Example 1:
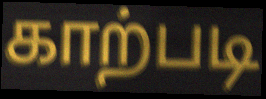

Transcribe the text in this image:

காற்படி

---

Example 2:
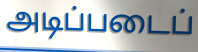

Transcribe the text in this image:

அடிப்படைப்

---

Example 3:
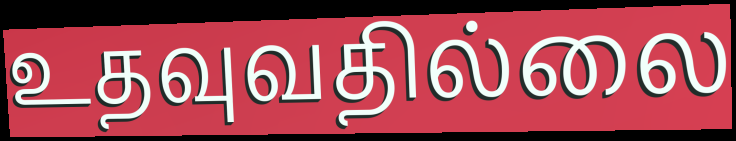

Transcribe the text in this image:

உதவுவதில்லை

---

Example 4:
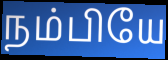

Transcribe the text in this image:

நம்பியே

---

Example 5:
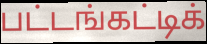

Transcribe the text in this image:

பட்டங்கட்டிக்